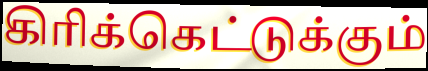
கிரிக்கெட்டுக்கும்